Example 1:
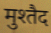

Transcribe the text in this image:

मुश्तैद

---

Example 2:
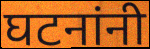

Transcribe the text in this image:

घटनांनी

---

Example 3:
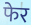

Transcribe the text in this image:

फेर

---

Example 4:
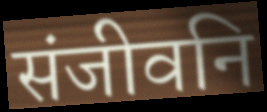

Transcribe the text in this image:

संजीवनि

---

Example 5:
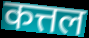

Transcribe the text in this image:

कत्तल